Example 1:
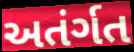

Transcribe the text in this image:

અતંર્ગત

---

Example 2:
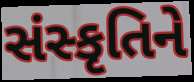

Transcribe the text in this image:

સંસ્કૃતિને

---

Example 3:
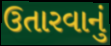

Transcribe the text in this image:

ઉતારવાનું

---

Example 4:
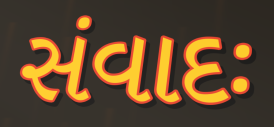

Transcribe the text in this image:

સંવાદઃ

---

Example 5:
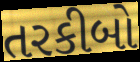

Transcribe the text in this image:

તરકીબો